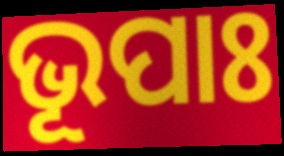
ଭୂପାଃ